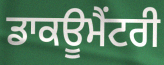
ਡਾਕਊਮੈਂਟਰੀ